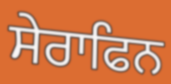
ਸੇਰਾਫਿਨ